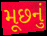
મૂછનું